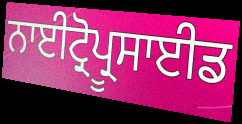
ਨਾਈਟ੍ਰੋਪ੍ਰੂਸਾਈਡ